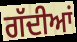
ਗੱਦੀਆਂ